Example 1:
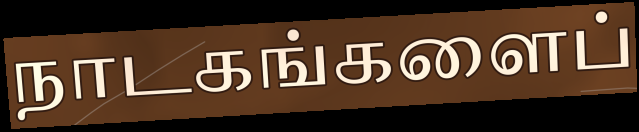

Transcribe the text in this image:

நாடகங்களைப்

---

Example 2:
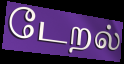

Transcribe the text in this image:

டேறல்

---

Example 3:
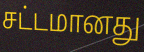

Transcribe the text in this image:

சட்டமானது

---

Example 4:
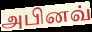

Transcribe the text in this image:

அபினவ்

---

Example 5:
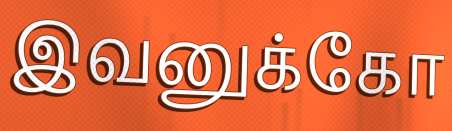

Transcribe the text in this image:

இவனுக்கோ